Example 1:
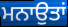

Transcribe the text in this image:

ਮਨਾਉਤਾਂ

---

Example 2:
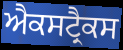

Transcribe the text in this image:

ਐਕਸਟ੍ਰੈਕਸ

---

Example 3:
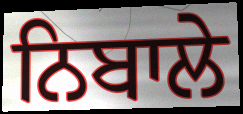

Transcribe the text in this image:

ਨਿਬਾਲੇ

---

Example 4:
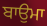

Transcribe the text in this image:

ਬਾਉਮਾ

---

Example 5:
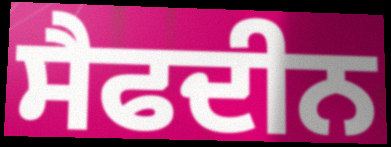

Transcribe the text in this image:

ਸੈਫਦੀਨ